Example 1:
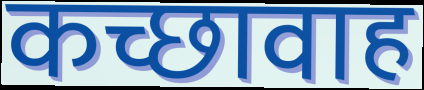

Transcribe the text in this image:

कच्छावाह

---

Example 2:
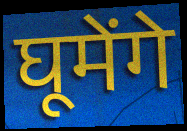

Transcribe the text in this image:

घूमेंगे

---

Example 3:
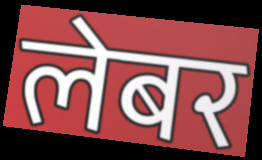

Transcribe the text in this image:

लेबर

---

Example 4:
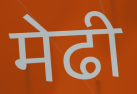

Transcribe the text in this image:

मेढी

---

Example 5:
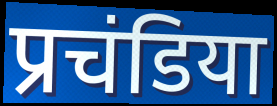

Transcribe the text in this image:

प्रचंडिया